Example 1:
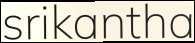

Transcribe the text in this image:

srikantha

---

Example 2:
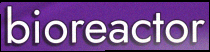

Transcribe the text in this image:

bioreactor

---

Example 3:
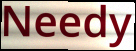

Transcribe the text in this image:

Needy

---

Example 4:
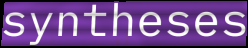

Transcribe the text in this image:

syntheses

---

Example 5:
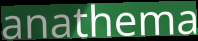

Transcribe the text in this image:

anathema